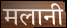
मलानी